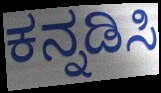
ಕನ್ನಡಿಸಿ